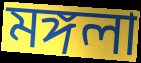
মঙ্গলা